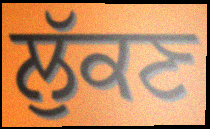
ਲੁੱਕਣ